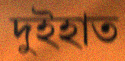
দুইহাত